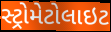
સ્ટ્રોમેટોલાઇટ